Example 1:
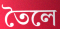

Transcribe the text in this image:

তৈলে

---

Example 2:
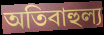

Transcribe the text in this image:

অতিবাহুল্য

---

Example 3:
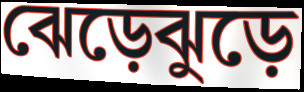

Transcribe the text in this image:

ঝেড়েঝুড়ে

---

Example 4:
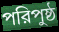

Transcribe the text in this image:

পরিপুষ্ঠ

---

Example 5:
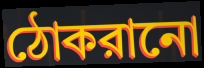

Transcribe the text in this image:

ঠোকরানো